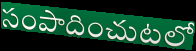
సంపాదించుటలో